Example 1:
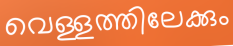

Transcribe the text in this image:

വെള്ളത്തിലേക്കും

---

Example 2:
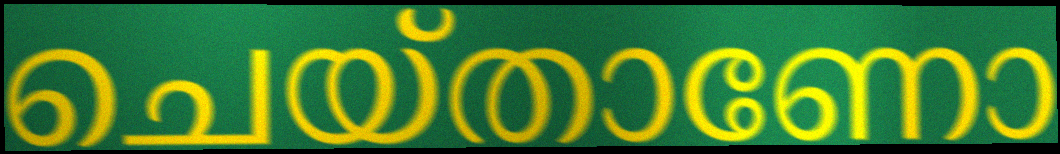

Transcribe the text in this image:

ചെയ്താണോ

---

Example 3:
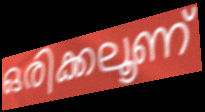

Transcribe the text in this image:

ഒരിക്കലൂണ്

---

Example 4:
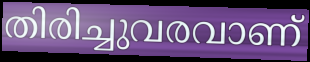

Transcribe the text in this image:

തിരിച്ചുവരവാണ്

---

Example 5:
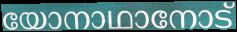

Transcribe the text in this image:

യോനാഥാനോട്